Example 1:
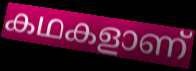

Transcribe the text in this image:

കഥകളാണ്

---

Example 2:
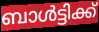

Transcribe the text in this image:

ബാൾട്ടിക്ക്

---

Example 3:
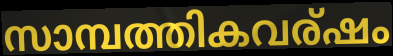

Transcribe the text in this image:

സാമ്പത്തികവര്ഷം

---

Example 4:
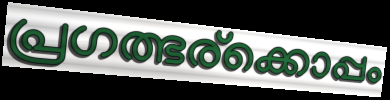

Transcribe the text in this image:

പ്രഗത്ഭര്ക്കൊപ്പം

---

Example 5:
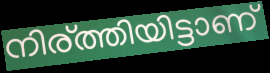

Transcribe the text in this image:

നിര്ത്തിയിട്ടാണ്